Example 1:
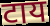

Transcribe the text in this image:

टाय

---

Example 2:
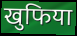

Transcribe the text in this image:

खुफिया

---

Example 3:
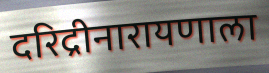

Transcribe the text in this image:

दरिद्रीनारायणाला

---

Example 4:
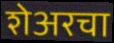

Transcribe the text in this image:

शेअरचा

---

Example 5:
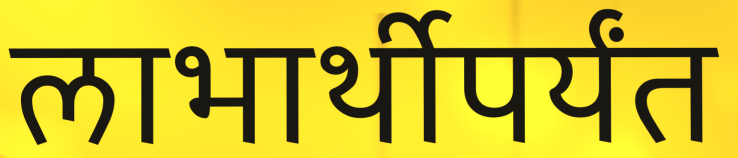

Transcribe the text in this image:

लाभार्थीपर्यंत